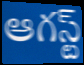
ఆగస్ట్